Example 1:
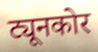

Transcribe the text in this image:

ट्यूनकोर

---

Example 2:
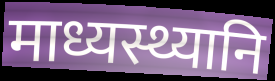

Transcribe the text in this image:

माध्यस्थ्यानि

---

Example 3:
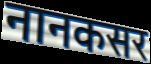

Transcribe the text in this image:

नानकसर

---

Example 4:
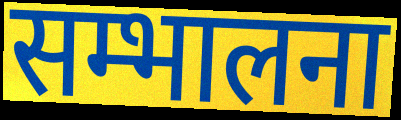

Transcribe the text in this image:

सम्भालना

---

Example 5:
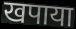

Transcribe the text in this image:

खपाया